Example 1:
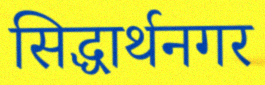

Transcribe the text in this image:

सिद्धार्थनगर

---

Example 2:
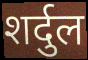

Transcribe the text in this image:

शर्दुल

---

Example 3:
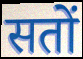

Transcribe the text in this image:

सतों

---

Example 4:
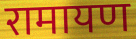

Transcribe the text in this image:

रामायण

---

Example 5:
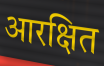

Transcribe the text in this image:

आरक्षित